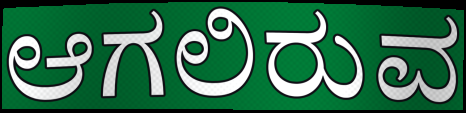
ಆಗಲಿರುವ